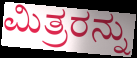
ಮಿತ್ರರನ್ನು